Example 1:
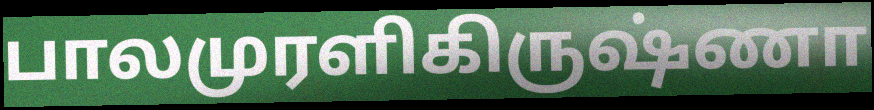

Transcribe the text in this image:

பாலமுரளிகிருஷ்ணா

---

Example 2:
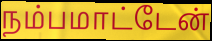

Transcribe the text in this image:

நம்பமாட்டேன்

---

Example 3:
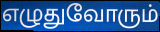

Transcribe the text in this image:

எழுதுவோரும்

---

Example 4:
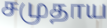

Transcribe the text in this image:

சமுதாய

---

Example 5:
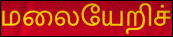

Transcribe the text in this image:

மலையேறிச்